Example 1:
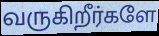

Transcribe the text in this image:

வருகிறீர்களே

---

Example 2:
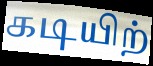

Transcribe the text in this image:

கடியிற்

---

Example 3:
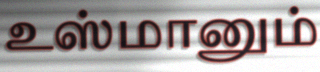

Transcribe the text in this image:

உஸ்மானும்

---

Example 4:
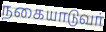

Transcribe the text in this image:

நகையாடுவர்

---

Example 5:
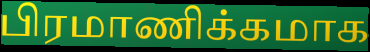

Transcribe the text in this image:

பிரமாணிக்கமாக